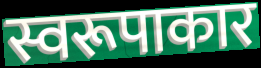
स्वरूपाकार